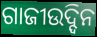
ଗାଜୀଉଦ୍ଦିନ